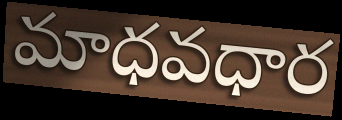
మాధవధార